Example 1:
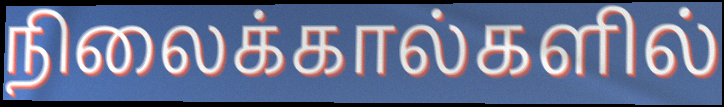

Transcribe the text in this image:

நிலைக்கால்களில்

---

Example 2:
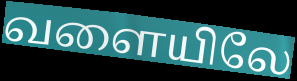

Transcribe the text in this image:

வளையிலே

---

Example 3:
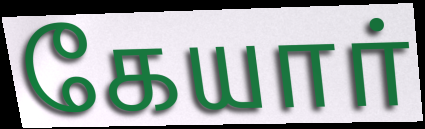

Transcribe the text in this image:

கேயார்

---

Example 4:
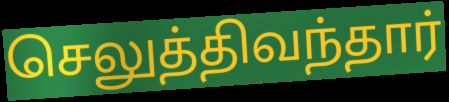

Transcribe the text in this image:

செலுத்திவந்தார்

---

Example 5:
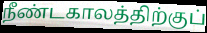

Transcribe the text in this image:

நீண்டகாலத்திற்குப்